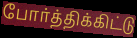
போர்த்திக்கிட்டு